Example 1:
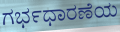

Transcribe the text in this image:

ಗರ್ಭಧಾರಣೆಯ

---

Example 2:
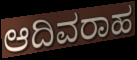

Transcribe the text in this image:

ಆದಿವರಾಹ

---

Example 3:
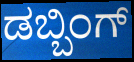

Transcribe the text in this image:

ಡಬ್ಬಿಂಗ್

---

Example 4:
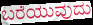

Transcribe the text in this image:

ಬರೆಯುವುದು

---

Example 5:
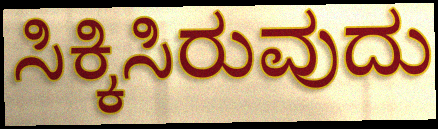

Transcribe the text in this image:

ಸಿಕ್ಕಿಸಿರುವುದು